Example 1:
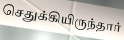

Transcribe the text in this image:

செதுக்கியிருந்தார்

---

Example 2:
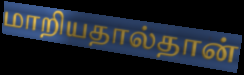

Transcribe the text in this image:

மாறியதால்தான்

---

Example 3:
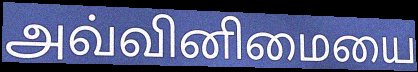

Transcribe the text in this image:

அவ்வினிமையை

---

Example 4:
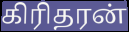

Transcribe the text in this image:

கிரிதரன்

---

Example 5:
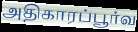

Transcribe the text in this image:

அதிகாரப்பூர்வ